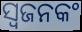
ସ୍ଵଜନକଂ